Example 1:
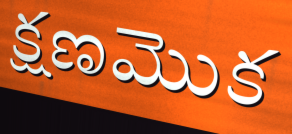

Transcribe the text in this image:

క్షణమొక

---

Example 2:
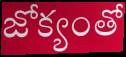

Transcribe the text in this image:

జోక్యంతో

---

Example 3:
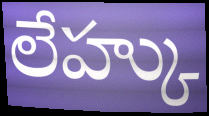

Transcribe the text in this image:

లేహ్కు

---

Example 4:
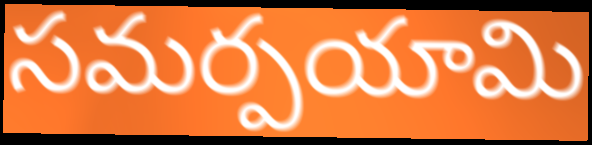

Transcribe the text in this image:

సమర్పయామి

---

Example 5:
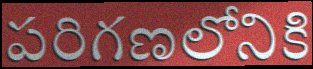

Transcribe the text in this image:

పరిగణలోనికి